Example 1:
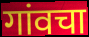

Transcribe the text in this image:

गांवचा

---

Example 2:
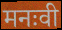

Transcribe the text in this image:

मनःवी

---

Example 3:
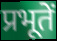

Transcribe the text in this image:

प्रभूतें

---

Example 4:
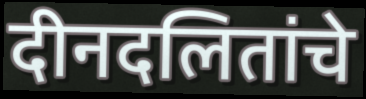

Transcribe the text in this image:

दीनदलितांचे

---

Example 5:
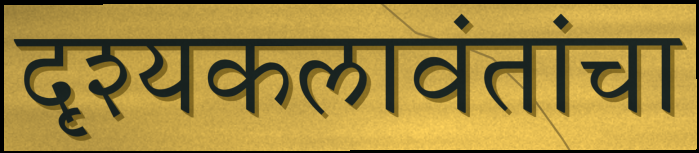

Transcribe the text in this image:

दृश्यकलावंतांचा